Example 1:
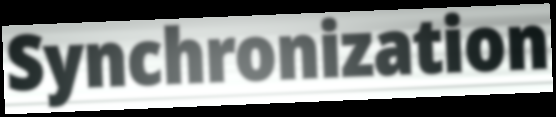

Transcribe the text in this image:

Synchronization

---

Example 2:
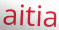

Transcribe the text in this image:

aitia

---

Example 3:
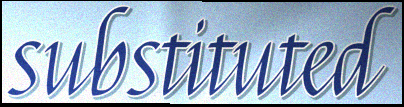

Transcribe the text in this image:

substituted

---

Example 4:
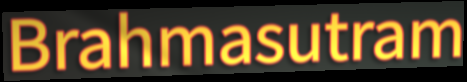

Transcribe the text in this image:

Brahmasutram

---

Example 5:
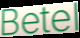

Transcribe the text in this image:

Betel